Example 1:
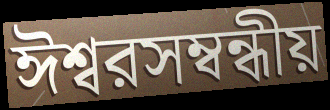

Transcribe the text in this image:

ঈশ্বরসম্বন্ধীয়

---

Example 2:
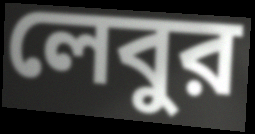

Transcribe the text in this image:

লেবুর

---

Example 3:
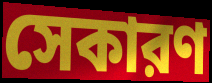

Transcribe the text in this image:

সেকারণ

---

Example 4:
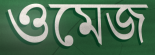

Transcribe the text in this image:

ওমেজ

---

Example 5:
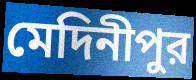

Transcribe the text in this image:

মেদিনীপুর